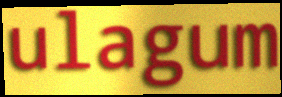
ulagum